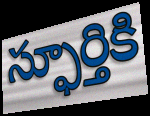
స్ఫూర్తికి